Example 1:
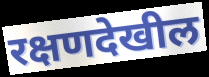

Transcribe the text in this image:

रक्षणदेखील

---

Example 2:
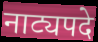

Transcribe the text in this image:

नाट्यपदे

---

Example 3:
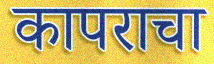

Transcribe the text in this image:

कापराचा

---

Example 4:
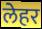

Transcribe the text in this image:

लेहर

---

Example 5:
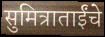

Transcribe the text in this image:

सुमित्राताईंचे